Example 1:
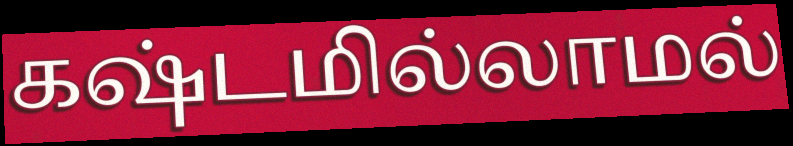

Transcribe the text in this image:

கஷ்டமில்லாமல்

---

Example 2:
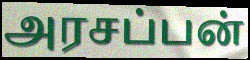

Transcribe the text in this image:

அரசப்பன்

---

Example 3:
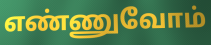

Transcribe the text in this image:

எண்ணுவோம்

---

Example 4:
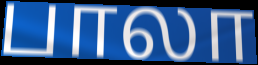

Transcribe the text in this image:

பாலா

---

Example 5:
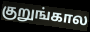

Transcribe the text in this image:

குறுங்கால